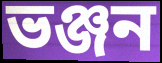
ভঞ্জন